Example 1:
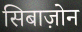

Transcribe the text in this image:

सिबाज़ोन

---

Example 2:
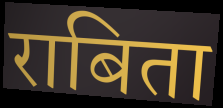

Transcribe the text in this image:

राबिता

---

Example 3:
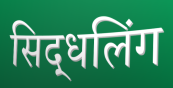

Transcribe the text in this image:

सिद्धलिंग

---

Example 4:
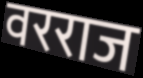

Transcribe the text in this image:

वरराज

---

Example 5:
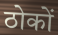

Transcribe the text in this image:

ठोकों